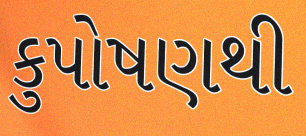
કુપોષણથી